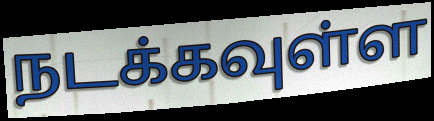
நடக்கவுள்ள